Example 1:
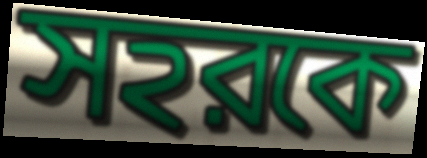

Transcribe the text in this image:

সহরকে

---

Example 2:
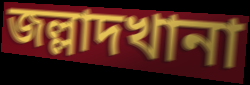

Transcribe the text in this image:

জল্লাদখানা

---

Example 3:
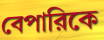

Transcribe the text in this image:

বেপারিকে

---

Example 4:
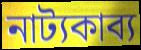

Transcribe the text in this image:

নাট্যকাব্য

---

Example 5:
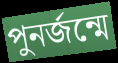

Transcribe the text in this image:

পুনর্জন্মে